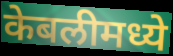
केबलीमध्ये